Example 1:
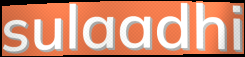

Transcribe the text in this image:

sulaadhi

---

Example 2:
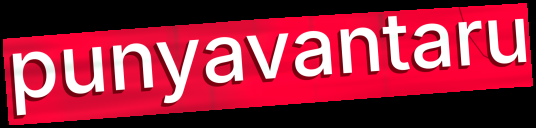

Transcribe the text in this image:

punyavantaru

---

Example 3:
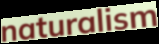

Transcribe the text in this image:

naturalism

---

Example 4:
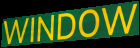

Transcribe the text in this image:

WINDOW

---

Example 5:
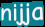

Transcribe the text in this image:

nijja